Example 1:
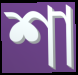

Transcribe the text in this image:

শা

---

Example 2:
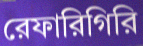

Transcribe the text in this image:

রেফারিগিরি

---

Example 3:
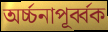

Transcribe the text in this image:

অর্চ্চনাপূর্ব্বক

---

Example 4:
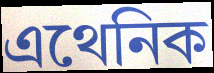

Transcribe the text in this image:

এথেনিক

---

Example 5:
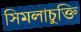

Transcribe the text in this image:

সিমলাচুক্তি